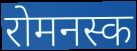
रोमनस्क